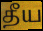
தீய